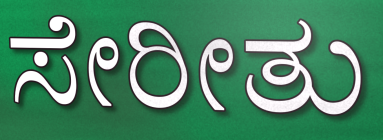
ಸೇರೀತು